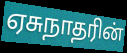
ஏசுநாதரின்